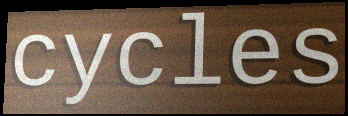
cycles